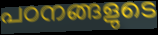
പഠനങ്ങളുടെ